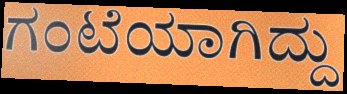
ಗಂಟೆಯಾಗಿದ್ದು